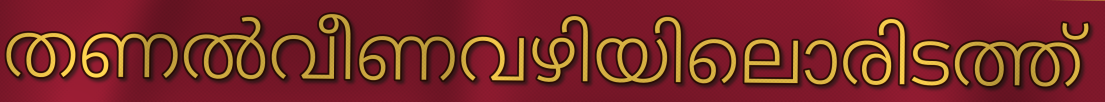
തണൽവീണവഴിയിലൊരിടത്ത്